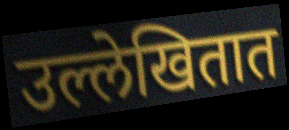
उल्लेखितात